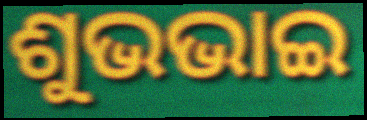
ଶୁଭଭାଇ